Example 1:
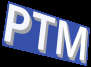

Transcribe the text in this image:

PTM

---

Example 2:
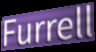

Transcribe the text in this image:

Furrell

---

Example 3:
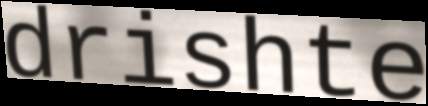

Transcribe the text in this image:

drishte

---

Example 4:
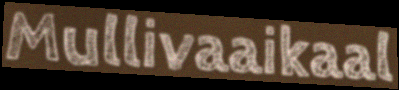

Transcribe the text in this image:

Mullivaaikaal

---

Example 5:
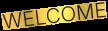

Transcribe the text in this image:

WELCOME